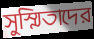
সুস্মিতাদের